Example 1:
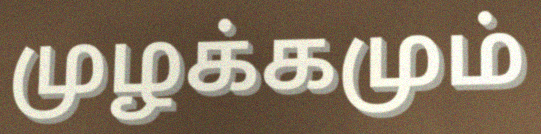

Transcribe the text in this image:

முழக்கமும்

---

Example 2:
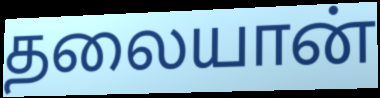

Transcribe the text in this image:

தலையான்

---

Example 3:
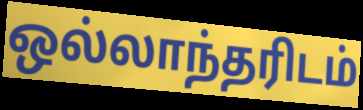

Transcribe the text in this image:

ஒல்லாந்தரிடம்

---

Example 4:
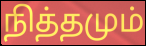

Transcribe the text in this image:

நித்தமும்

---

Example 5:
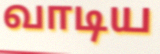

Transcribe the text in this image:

வாடிய